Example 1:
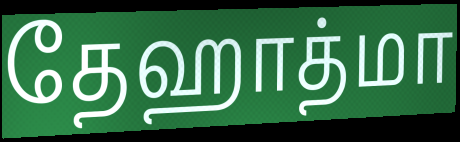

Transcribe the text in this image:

தேஹாத்மா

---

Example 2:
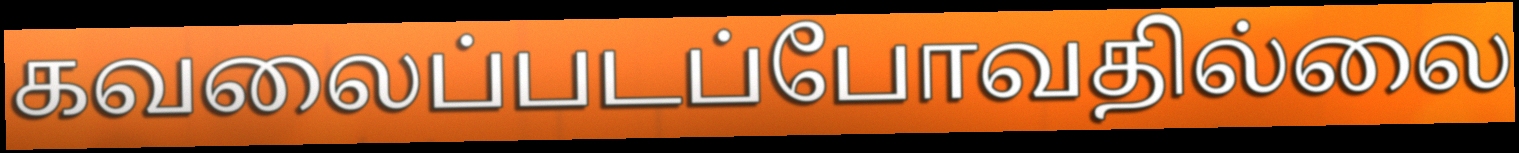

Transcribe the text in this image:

கவலைப்படப்போவதில்லை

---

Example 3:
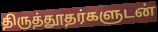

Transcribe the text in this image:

திருத்தூதர்களுடன்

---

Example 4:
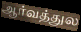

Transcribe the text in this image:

ஆர்வத்துல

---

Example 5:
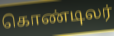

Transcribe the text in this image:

கொண்டிலர்